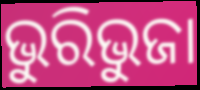
ଭୁରିଭୁଜା